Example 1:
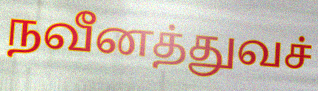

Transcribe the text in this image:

நவீனத்துவச்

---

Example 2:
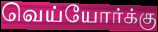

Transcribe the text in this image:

வெய்யோர்க்கு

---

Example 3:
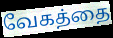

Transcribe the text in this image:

வேகத்தை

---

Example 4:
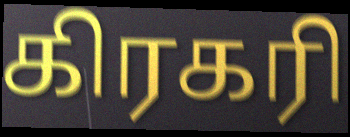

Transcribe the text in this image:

கிரகரி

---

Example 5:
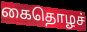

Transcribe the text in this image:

கைதொழச்